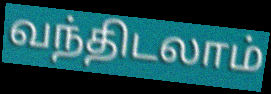
வந்திடலாம்